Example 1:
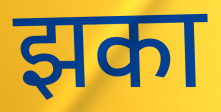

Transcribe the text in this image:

झका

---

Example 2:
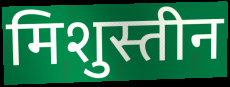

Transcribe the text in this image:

मिशुस्तीन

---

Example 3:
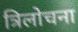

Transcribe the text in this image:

त्रिलोचना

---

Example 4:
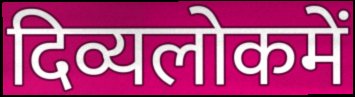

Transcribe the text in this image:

दिव्यलोकमें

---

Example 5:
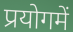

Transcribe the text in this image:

प्रयोगमें